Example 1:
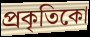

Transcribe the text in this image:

প্ৰকৃতিকো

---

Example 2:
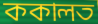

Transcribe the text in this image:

ককালত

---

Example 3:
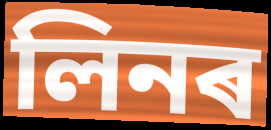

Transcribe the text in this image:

লিনৰ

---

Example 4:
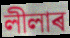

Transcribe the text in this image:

লীলাৰ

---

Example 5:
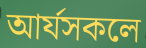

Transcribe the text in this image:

আৰ্যসকলে